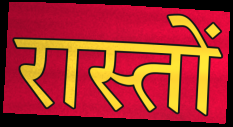
रास्‍तों